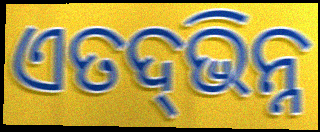
ଏତଦ୍‌ଭିନ୍ନ